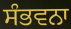
ਸੰਭਵਨਾ